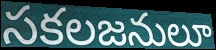
సకలజనులూ